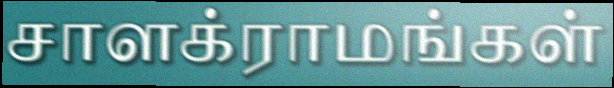
சாளக்ராமங்கள்